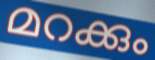
മറക്കും